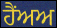
ਹੈਂਅਅ